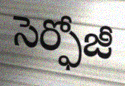
సెర్ఫోజీ